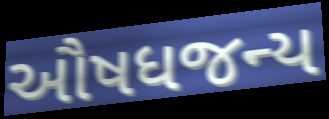
ઔષધજન્ય